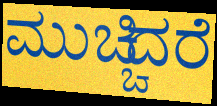
ಮುಚ್ಚಿದರೆ